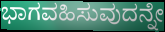
ಭಾಗವಹಿಸುವುದನ್ನೇ